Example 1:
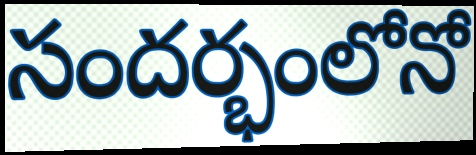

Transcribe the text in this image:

సందర్భంలోనో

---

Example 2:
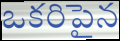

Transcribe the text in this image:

ఒకరిపైన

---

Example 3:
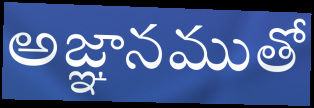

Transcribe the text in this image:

అజ్ఞానముతో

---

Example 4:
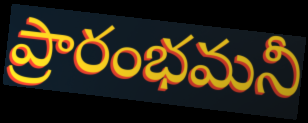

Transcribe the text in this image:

ప్రారంభమనీ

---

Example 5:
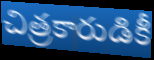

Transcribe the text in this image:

చిత్రకారుడికీ